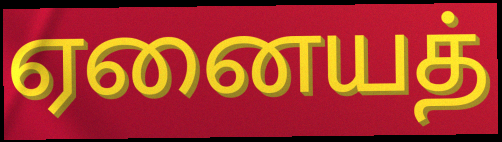
ஏனையத்